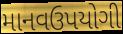
માનવઉપયોગી